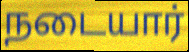
நடையார்